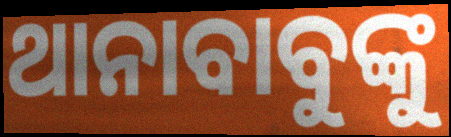
ଥାନାବାବୁଙ୍କୁ